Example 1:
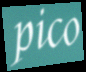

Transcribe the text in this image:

pico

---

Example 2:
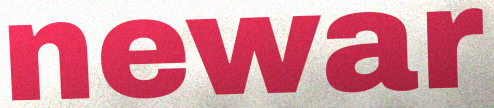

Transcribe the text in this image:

newar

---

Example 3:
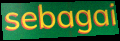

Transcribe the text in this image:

sebagai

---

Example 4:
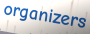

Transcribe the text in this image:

organizers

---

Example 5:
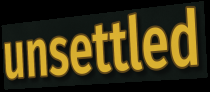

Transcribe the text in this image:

unsettled